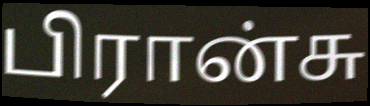
பிரான்சு